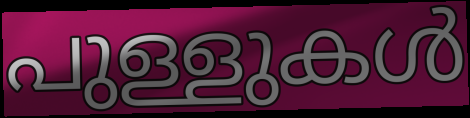
പുള്ളുകൾ